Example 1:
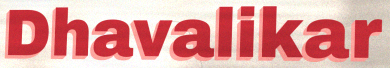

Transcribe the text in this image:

Dhavalikar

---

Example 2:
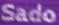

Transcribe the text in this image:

Sado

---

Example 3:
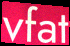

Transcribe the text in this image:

vfat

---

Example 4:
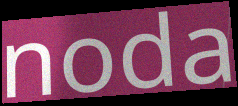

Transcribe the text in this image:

noda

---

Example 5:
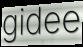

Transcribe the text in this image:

gidee